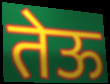
तेऊ